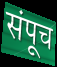
संपूच